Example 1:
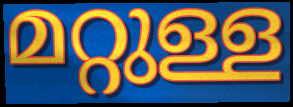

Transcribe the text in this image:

മറ്റുള്ള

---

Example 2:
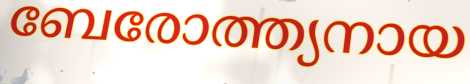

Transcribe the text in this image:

ബേരോത്ത്യനായ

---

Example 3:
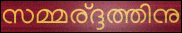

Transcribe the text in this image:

സമ്മര്ദ്ദത്തിനു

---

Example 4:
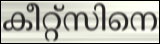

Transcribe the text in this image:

കീറ്റ്സിനെ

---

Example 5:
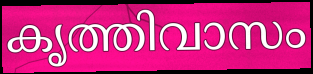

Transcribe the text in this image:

കൃത്തിവാസം